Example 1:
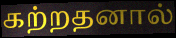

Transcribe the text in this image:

கற்றதனால்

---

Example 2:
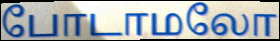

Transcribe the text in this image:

போடாமலோ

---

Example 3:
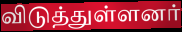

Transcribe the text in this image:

விடுத்துள்ளனர்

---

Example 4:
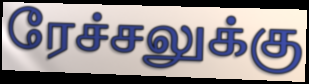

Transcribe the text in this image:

ரேச்சலுக்கு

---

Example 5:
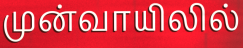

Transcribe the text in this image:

முன்வாயிலில்